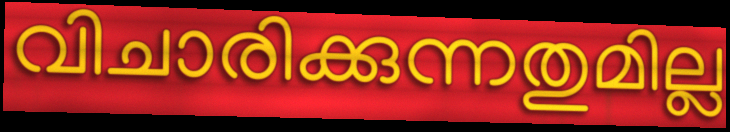
വിചാരിക്കുന്നതുമില്ല